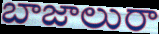
బాజాలురా